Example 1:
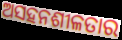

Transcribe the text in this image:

ଅସହନଶୀଳତାର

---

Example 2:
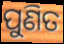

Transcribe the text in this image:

ପୁଣିତ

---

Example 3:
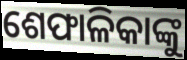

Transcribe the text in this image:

ଶେଫାଳିକାଙ୍କୁ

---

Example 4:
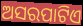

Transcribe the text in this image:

ଅସରପାଟିଏ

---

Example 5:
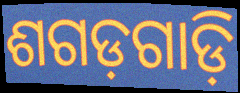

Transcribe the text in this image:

ଶଗଡ଼ଗାଡ଼ି